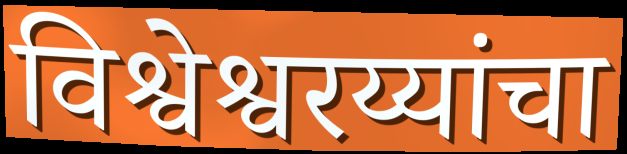
विश्वेश्वरय्यांचा